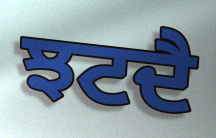
ਝਟਦੈ